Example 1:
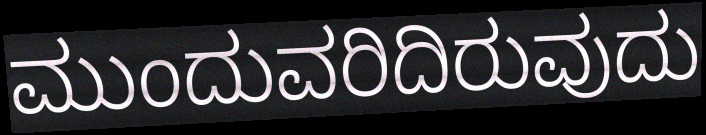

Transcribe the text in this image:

ಮುಂದುವರಿದಿರುವುದು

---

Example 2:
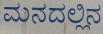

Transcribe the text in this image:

ಮನದಲ್ಲಿನ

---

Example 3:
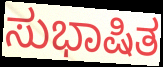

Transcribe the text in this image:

ಸುಭಾಷಿತ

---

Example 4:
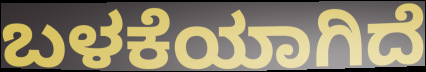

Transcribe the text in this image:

ಬಳಕೆಯಾಗಿದೆ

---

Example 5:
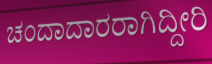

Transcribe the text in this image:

ಚಂದಾದಾರರಾಗಿದ್ದೀರಿ